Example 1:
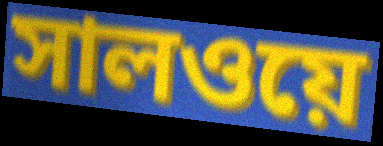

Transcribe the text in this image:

সালওয়ে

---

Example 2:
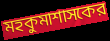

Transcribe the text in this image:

মহকুমাশাসকের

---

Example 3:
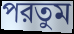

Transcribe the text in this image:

পরতুম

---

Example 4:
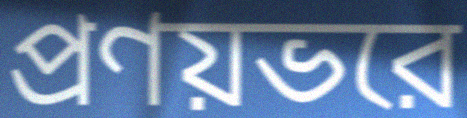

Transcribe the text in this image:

প্রণয়ভরে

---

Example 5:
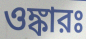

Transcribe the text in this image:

ওঙ্কারঃ